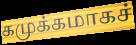
கமுக்கமாகச்